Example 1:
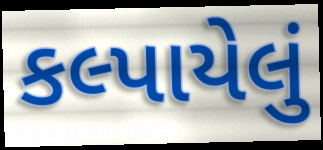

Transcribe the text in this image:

કલ્પાયેલું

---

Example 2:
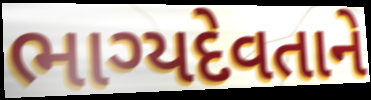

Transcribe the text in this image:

ભાગ્યદેવતાને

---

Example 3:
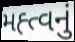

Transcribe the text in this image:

મહ્ત્વનું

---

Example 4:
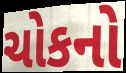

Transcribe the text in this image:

ચોકનો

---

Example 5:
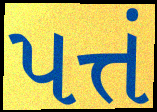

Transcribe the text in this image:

પત્તં